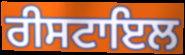
ਰੀਸਟਾਇਲ